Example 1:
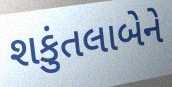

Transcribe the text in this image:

શકુંતલાબેને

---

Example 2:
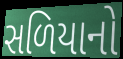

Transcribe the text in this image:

સળિયાનો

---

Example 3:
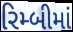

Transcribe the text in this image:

રિમ્બીમાં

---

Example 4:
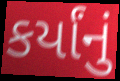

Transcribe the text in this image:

કર્યાંનું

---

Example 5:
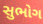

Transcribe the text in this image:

સુભોગ